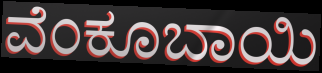
ವೆಂಕೂಬಾಯಿ